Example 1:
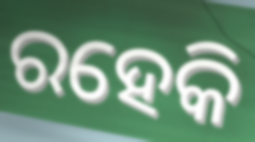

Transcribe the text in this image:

ରହେକି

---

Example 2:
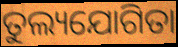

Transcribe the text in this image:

ତୁଲ୍ୟଯୋଗିତା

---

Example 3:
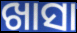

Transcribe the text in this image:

ଖାସା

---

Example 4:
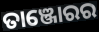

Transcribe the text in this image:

ତାଞ୍ଜୋରର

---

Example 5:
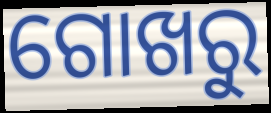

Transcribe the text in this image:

ଗୋଖରୁ